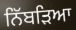
ਨਿੱਬੜਿਆ